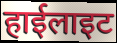
हाईलाइट